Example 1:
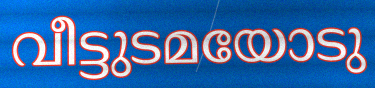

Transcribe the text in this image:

വീട്ടുടമയോടു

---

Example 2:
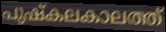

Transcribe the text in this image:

പുഷ്കലകാലത്ത്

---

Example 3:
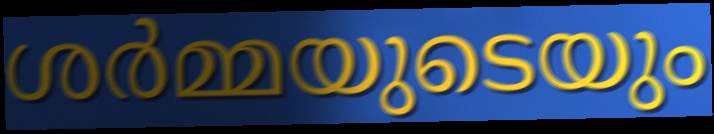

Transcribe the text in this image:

ശർമ്മയുടെയും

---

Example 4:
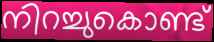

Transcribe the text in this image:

നിറച്ചുകൊണ്ട്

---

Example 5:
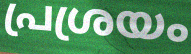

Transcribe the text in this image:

പ്രശ്രയം